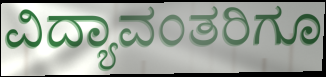
ವಿದ್ಯಾವಂತರಿಗೂ